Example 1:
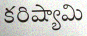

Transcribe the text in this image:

కరిష్యామి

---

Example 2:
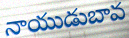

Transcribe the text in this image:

నాయుడుబావ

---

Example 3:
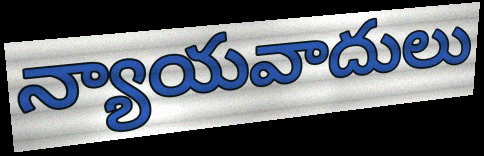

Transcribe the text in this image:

న్యాయవాదులు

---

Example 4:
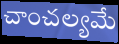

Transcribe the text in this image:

చాంచల్యమే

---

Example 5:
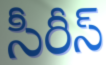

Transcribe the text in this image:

సీరీస్